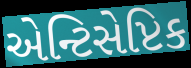
એન્ટિસેપ્ટિક